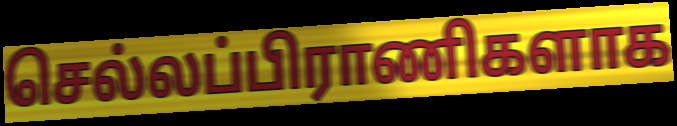
செல்லப்பிராணிகளாக